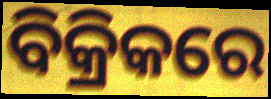
ବିକ୍ରିକରେ